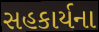
સહકાર્યના